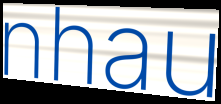
nhau